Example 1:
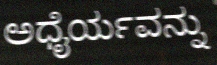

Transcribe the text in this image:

ಅಧೈರ್ಯವನ್ನು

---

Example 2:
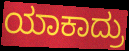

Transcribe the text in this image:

ಯಾಕಾದ್ರು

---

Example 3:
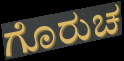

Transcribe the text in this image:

ಗೊರುಚ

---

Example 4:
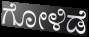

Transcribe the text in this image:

ಗೋಳಿಡೆ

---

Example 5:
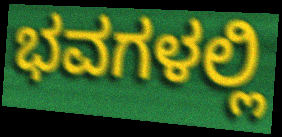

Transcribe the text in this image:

ಭವಗಳಲ್ಲಿ